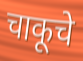
चाकूचे